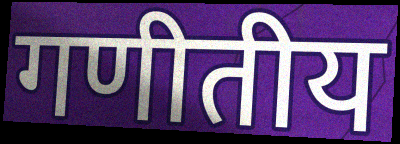
गणीतीय